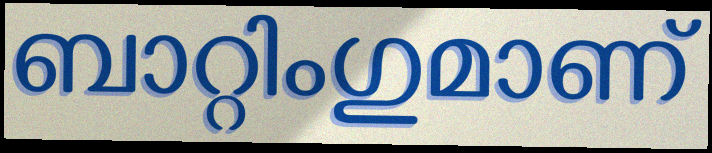
ബാറ്റിംഗുമാണ്